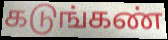
கடுங்கண்